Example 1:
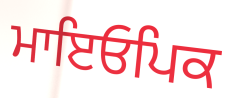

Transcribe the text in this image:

ਮਾਇਓਪਿਕ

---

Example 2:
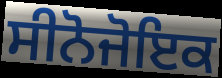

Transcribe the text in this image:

ਸੀਨੋਜੋਇਕ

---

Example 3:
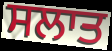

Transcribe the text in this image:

ਸਲਾਤ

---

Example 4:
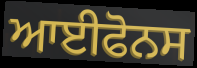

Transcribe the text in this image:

ਆਈਫੋਨਸ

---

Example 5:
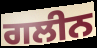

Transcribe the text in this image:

ਗਲੀਨ